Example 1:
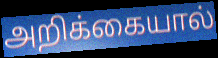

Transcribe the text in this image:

அறிக்கையால்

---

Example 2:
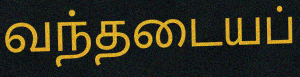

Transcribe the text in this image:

வந்தடையப்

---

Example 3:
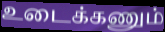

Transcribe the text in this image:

உடைக்கணும்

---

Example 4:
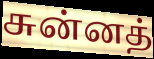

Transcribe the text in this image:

சுன்னத்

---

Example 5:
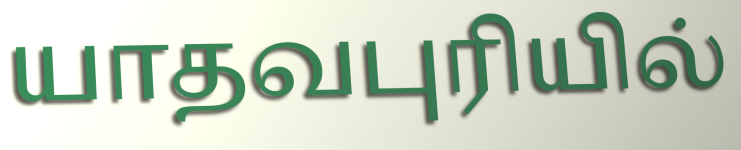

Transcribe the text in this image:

யாதவபுரியில்